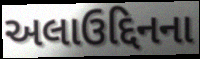
અલાઉદ્દિનના